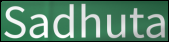
Sadhuta